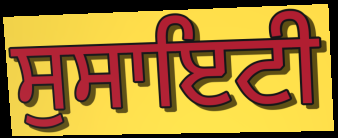
ਸੁਸਾਇਟੀ